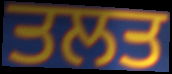
ਤਲਤ